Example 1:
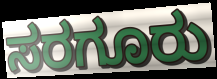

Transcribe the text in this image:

ಸರಗೂರು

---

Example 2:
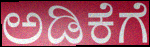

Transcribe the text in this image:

ಅಡಿಕೆಗೆ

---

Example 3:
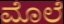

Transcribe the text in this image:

ಮೊಲೆ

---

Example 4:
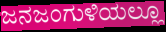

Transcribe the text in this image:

ಜನಜಂಗುಳಿಯಲ್ಲೂ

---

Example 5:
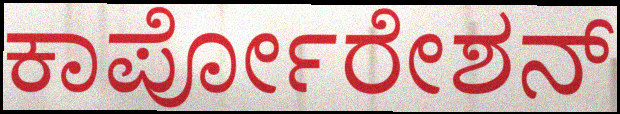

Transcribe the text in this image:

ಕಾರ್ಪೋರೇಶನ್